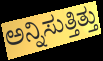
ಅನ್ನಿಸುತ್ತಿತ್ತು